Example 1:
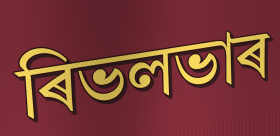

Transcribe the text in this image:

ৰিভলভাৰ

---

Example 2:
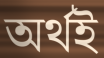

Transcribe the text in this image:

অৰ্থই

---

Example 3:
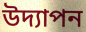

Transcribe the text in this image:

উদ্যাপন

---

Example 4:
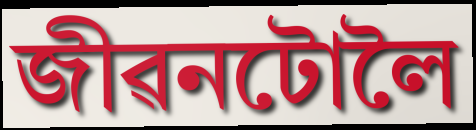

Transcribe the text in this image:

জীৱনটোলৈ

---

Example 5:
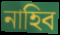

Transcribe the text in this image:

নাহিব